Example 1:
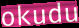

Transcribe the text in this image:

okudu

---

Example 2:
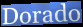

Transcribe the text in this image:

Dorado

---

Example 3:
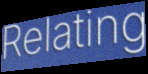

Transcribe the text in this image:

Relating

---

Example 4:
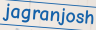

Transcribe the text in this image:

jagranjosh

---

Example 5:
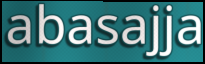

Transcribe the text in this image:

abasajja